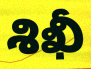
శిఖీ